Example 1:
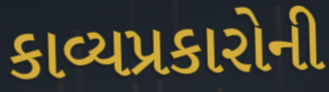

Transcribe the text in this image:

કાવ્યપ્રકારોની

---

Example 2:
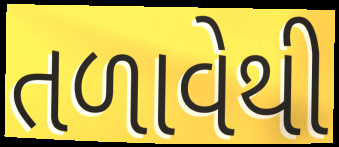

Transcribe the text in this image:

તળાવેથી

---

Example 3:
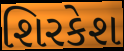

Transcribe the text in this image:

શિરકેશ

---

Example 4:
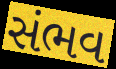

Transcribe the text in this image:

સંભવ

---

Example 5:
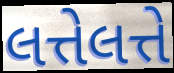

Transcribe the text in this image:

લત્તેલત્તે